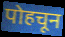
पोहचून